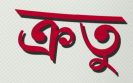
ক্রতু